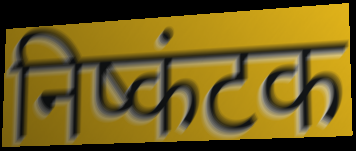
निष्कंटक